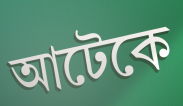
আটেকে